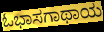
ಓಭಾಸಗಾಥಾಯ